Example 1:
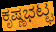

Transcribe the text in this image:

ಕೃಷ್ಣಭಟ್ಟ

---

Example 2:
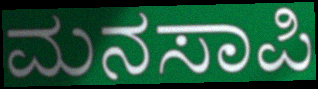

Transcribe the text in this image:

ಮನಸಾಪಿ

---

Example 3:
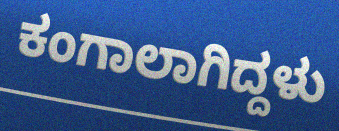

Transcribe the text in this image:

ಕಂಗಾಲಾಗಿದ್ದಳು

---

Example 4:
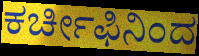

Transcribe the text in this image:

ಕರ್ಚೀಫಿನಿಂದ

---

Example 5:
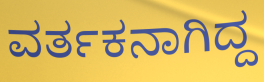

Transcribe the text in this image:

ವರ್ತಕನಾಗಿದ್ದ